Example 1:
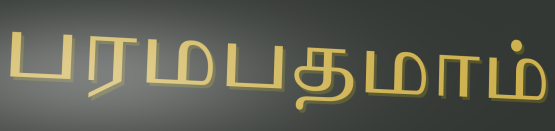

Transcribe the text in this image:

பரமபதமாம்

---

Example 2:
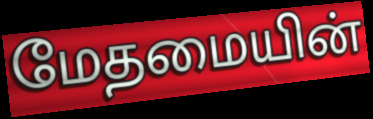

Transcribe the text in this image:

மேதமையின்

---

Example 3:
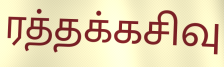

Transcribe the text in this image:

ரத்தக்கசிவு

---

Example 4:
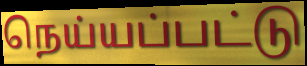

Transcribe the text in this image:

நெய்யப்பட்டு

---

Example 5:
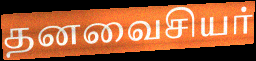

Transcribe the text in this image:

தனவைசியர்